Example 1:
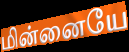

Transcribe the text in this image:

மின்னையே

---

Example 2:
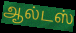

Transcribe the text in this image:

ஆல்டஸ்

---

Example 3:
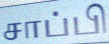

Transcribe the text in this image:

சாப்பி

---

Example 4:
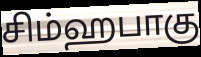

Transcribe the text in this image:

சிம்ஹபாகு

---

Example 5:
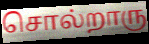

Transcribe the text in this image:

சொல்றாரு